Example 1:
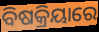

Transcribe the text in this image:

ବିଷକ୍ରିୟାରେ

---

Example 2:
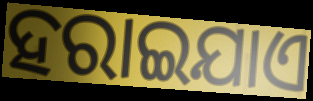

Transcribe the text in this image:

ହରାଇଯାଏ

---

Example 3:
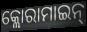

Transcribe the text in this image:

କ୍ଲୋରାମାଇନ୍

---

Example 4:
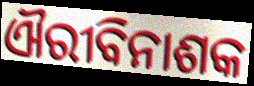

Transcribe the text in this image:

ଐରୀବିନାଶକ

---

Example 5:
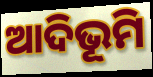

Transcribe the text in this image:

ଆଦିଭୂମି